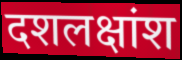
दशलक्षांश